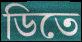
ডিতে